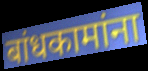
बांधकामांना